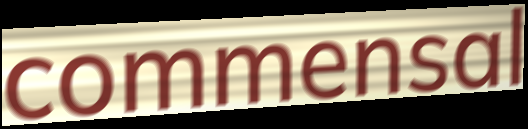
commensal